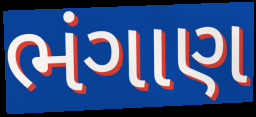
ભંગાણ